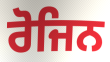
ਰੋਜਿਨ